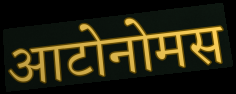
आटोनोमस